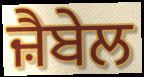
ਜ਼ੈਬੇਲ